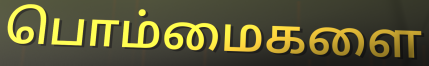
பொம்மைகளை